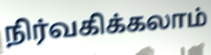
நிர்வகிக்கலாம்